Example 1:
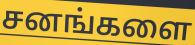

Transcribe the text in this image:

சனங்களை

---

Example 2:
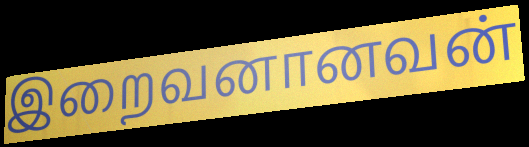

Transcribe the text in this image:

இறைவனானவன்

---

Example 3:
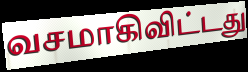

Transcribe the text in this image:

வசமாகிவிட்டது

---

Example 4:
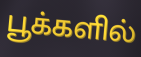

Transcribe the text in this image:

பூக்களில்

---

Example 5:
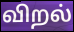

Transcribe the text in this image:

விறல்